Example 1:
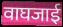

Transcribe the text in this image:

वाघजाई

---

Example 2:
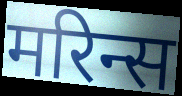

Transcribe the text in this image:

मरिन्स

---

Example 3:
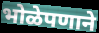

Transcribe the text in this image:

भोळेपणाने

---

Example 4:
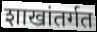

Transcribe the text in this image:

शाखांतर्गत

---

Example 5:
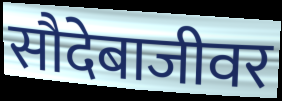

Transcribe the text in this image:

सौदेबाजीवर